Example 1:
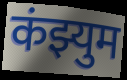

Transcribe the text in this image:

कंझ्युम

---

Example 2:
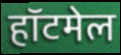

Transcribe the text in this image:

हॉटमेल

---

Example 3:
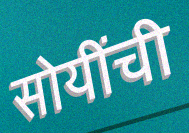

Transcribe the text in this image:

सोयींची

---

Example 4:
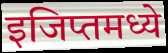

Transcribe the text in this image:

इजिप्तमध्ये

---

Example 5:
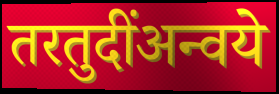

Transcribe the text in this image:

तरतुदींअन्वये